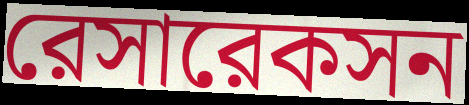
রেসারেকসন